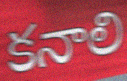
కనాలి